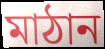
মাঠান